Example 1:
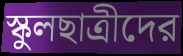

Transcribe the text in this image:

স্কুলছাত্রীদের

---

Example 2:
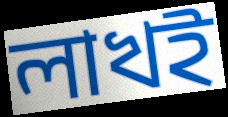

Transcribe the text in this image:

লাখই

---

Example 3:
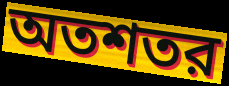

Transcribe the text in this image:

অতশতর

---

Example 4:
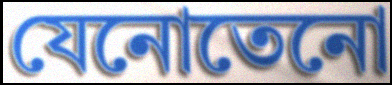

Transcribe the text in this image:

যেনোতেনো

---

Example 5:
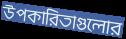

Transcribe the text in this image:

উপকারিতাগুলোর